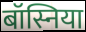
बॉस्निया